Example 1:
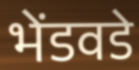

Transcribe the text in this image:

भेंडवडे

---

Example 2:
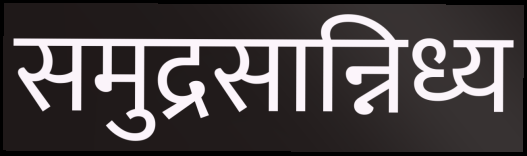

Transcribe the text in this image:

समुद्रसान्निध्य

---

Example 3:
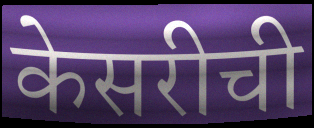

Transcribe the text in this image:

केसरीची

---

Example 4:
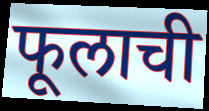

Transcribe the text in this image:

फूलाची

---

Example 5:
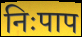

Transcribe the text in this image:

निःपाप